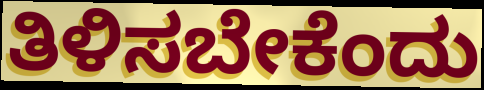
ತಿಳಿಸಬೇಕೆಂದು